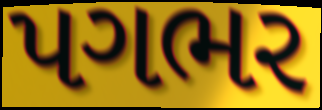
પગભર